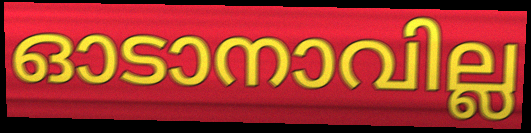
ഓടാനാവില്ല